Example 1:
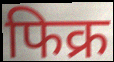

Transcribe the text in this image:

फिक्र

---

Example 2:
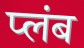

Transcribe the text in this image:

प्लंब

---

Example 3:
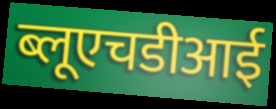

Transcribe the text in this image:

ब्लूएचडीआई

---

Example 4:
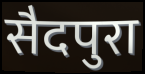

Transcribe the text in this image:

सैदपुरा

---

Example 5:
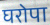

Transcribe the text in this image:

घरोपा